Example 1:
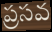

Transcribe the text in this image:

ప్రసవ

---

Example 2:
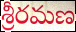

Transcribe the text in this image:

శ్రీరమణ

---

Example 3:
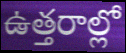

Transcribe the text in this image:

ఉత్తరాల్లో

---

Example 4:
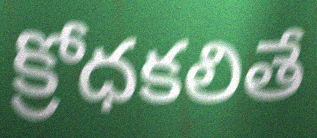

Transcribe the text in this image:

క్రోధకలితే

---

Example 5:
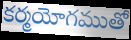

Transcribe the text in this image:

కర్మయోగముతో